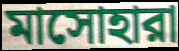
মাসোহারা